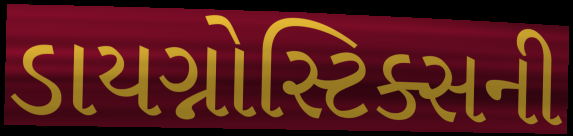
ડાયગ્નોસ્ટિક્સની